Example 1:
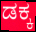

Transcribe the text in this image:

ಡಕ್ಕ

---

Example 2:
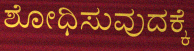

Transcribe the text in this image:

ಶೋಧಿಸುವುದಕ್ಕೆ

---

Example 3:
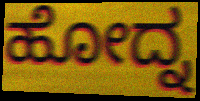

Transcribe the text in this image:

ಹೋದ್ನ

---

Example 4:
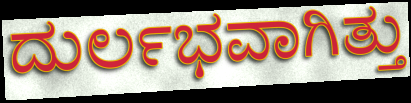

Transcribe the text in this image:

ದುರ್ಲಭವಾಗಿತ್ತು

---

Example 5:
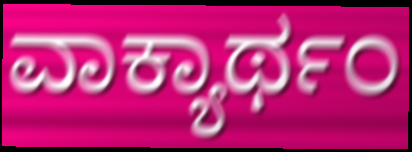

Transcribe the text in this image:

ವಾಕ್ಯಾರ್ಥಂ